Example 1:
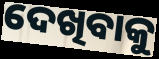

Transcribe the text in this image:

ଦେଖିବାକୁ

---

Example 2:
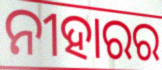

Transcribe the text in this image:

ନୀହାରର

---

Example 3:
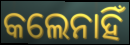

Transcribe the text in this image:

କଲେନାହିଁ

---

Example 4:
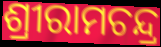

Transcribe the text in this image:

ଶ୍ରୀରାମଚନ୍ଦ୍ର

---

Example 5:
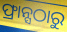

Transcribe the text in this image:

ଫ୍ରାନ୍ସଠାରୁ